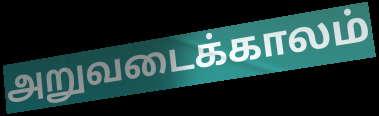
அறுவடைக்காலம்